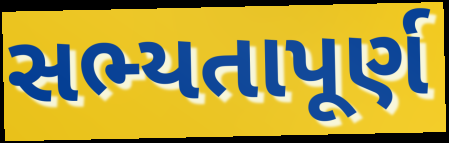
સભ્યતાપૂર્ણ